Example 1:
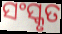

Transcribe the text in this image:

ସଂସ୍କୃତ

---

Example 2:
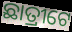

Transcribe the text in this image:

ଛାତ୍ରୀଟେ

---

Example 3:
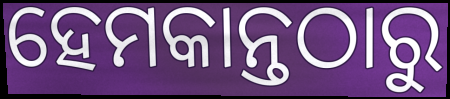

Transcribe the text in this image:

ହେମକାନ୍ତଠାରୁ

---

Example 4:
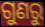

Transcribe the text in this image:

ଗୁଣରୁ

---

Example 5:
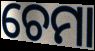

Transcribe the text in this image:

ଚେମା